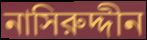
নাসিরুদ্দীন